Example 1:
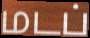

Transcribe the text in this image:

மடப்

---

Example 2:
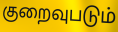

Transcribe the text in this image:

குறைவுபடும்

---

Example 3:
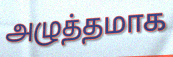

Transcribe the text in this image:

அழுத்தமாக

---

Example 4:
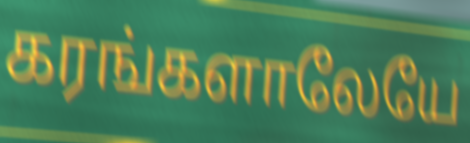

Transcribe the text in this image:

கரங்களாலேயே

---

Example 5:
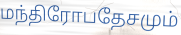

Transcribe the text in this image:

மந்திரோபதேசமும்